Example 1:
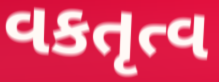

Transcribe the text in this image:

વકતૃત્વ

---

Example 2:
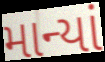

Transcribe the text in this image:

માન્યાં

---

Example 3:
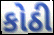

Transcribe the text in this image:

કોઠી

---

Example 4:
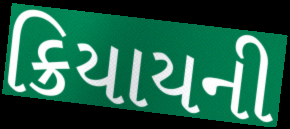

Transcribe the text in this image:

ક્રિયાયની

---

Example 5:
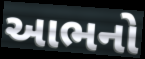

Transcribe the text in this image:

આભનો